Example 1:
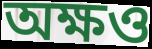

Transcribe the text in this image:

অক্ষও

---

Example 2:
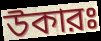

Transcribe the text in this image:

উকারঃ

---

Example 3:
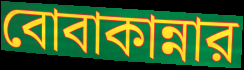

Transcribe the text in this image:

বোবাকান্নার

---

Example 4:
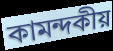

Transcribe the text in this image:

কামন্দকীয়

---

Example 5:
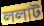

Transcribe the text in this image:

ললাট